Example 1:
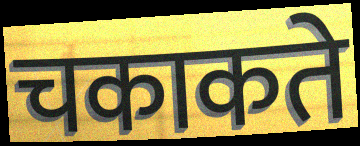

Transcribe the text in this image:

चकाकते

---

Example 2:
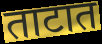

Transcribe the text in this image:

ताटात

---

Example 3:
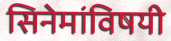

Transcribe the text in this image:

सिनेमांविषयी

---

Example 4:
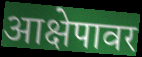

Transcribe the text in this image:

आक्षेपावर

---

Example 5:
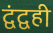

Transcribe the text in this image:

द्वंद्वही